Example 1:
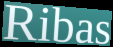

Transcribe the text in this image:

Ribas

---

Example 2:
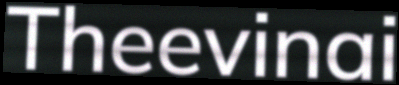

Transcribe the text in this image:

Theevinai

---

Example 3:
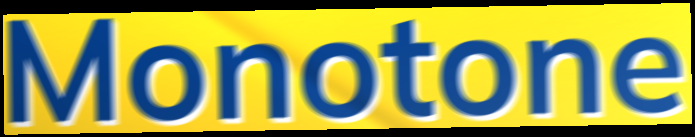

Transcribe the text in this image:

Monotone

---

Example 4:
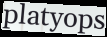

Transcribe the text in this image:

platyops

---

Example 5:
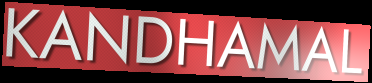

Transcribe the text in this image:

KANDHAMAL